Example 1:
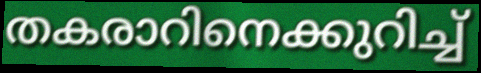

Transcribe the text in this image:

തകരാറിനെക്കുറിച്ച്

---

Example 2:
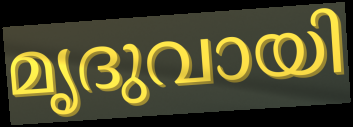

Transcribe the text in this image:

മൃദുവായി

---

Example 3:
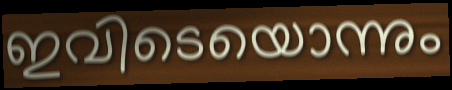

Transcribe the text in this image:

ഇവിടെയൊന്നും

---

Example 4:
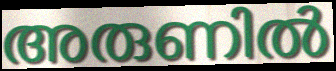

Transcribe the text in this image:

അരുണിൽ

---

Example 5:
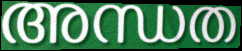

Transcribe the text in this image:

അന്ധത